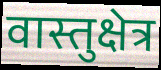
वास्तुक्षेत्र